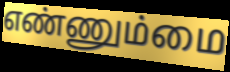
எண்ணும்மை